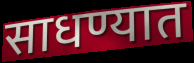
साधण्यात